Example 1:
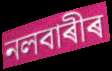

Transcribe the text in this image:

নলবাৰীৰ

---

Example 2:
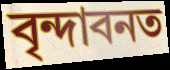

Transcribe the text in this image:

বৃন্দাবনত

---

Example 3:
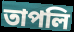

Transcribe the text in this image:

তাপলি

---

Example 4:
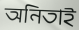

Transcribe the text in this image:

অনিতাই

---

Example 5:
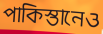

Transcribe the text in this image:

পাকিস্তানেও